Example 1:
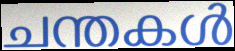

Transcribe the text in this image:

ചന്തകൾ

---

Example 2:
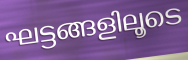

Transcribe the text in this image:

ഘട്ടങ്ങളിലൂടെ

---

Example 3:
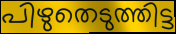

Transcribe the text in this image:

പിഴുതെടുത്തിട്ട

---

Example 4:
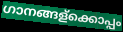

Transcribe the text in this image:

ഗാനങ്ങള്ക്കൊപ്പം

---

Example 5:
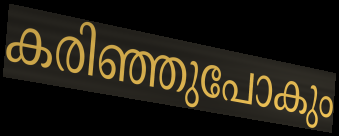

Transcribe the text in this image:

കരിഞ്ഞുപോകും